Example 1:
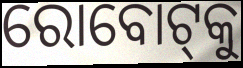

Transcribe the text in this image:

ରୋବୋଟ୍‌କୁ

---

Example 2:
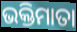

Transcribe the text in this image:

ଭକ୍ତିମାତା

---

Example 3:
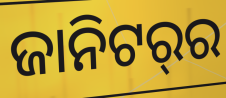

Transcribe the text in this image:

ଜାନିଟର୍‌ର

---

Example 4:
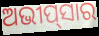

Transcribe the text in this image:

ଅଭୀପ୍‌ସାର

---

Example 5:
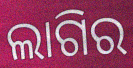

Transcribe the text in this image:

ଲାଗିର